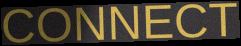
CONNECT